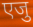
एजु